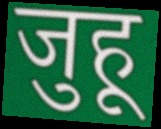
जुहू